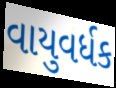
વાયુવર્ધક